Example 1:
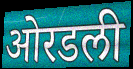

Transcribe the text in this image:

ओरडली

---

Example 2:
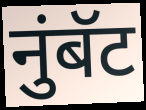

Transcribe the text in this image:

नुंबॅट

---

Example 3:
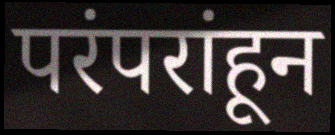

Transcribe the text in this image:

परंपरांहून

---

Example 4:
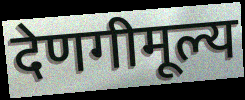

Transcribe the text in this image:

देणगीमूल्य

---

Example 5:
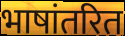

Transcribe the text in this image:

भाषांतरित